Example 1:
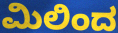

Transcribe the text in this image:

ಮಿಲಿಂದ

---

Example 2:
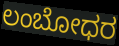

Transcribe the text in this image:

ಲಂಬೋಧರ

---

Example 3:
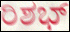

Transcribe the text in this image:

ರಿಶಭ್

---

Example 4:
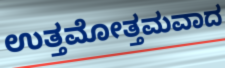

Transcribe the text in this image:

ಉತ್ತಮೋತ್ತಮವಾದ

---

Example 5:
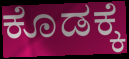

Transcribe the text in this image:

ಕೊಡಕ್ಕೆ